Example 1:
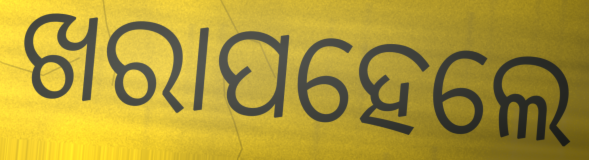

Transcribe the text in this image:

ଖରାପହେଲେ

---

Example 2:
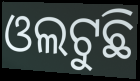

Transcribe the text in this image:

ଓଲଟୁଛି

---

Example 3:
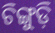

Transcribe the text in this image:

ଚିଙ୍ଗୁଡ଼ି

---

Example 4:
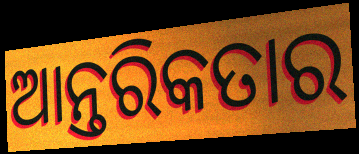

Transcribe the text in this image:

ଆନ୍ତରିକତାର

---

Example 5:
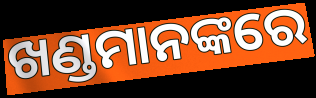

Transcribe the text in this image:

ଖଣ୍ଡମାନଙ୍କରେ